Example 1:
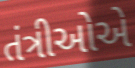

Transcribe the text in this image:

તંત્રીઓએ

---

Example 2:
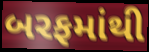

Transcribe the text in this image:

બરફમાંથી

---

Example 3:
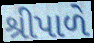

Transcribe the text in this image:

શ્રીપાળે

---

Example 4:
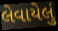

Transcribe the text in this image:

લેવાયેલું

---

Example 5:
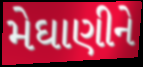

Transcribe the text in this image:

મેઘાણીને